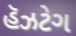
હૅઝટેગ